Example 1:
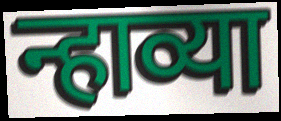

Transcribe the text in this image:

न्हाव्या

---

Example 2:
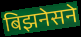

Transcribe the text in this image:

बिझनेसने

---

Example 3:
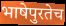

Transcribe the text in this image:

भाषेपुरतेच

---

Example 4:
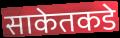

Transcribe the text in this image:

साकेतकडे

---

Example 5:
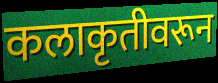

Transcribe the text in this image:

कलाकृतीवरून